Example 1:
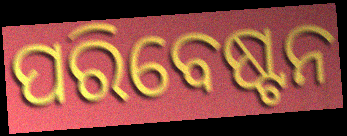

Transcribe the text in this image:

ପରିବେଷ୍ଟନ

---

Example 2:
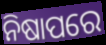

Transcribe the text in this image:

ନିଷାପରେ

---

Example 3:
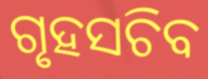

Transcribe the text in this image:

ଗୃହସଚିବ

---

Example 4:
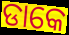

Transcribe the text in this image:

ଡାକେ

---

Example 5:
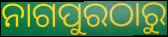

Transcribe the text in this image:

ନାଗପୁରଠାରୁ